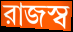
রাজস্ব